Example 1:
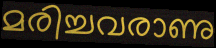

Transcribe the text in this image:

മരിച്ചവരാണു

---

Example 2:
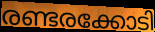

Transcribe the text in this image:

രണ്ടരക്കോടി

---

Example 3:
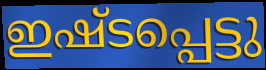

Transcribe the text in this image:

ഇഷ്ടപ്പെട്ടു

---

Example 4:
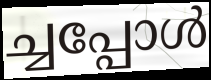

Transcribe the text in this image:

ച്ചപ്പോൾ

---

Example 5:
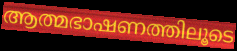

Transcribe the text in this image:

ആത്മഭാഷണത്തിലൂടെ